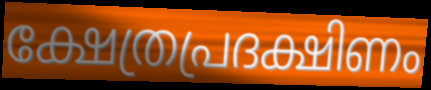
ക്ഷേത്രപ്രദക്ഷിണം